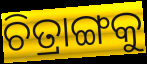
ଚିତ୍ରାଙ୍ଗକୁ